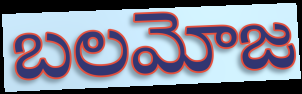
బలమోజ